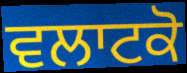
ਵਲਾਟਕੋ